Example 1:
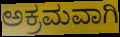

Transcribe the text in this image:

ಅಕ್ರಮವಾಗಿ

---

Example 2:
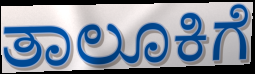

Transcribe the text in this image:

ತಾಲೂಕಿಗೆ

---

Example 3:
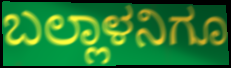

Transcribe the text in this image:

ಬಲ್ಲಾಳನಿಗೂ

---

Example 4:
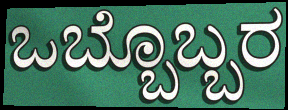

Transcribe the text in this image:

ಒಬ್ಬೊಬ್ಬರ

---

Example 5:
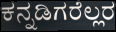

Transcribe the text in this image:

ಕನ್ನಡಿಗರೆಲ್ಲರ